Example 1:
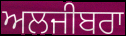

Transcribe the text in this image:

ਅਲਜੀਬਰਾ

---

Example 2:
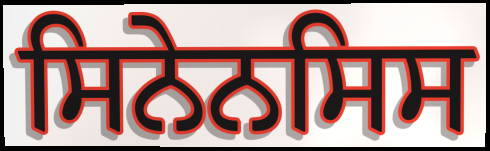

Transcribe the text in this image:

ਸਿਨੇਨਸਿਸ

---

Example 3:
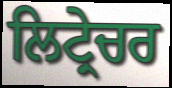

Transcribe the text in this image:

ਲਿਟ੍ਰੇਚਰ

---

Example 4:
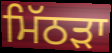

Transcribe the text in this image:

ਮਿੱਠੜਾ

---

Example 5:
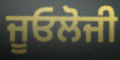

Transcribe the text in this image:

ਜੂਓਲੋਜੀ